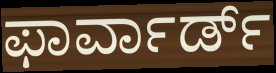
ಫಾರ್ವಾರ್ಡ್